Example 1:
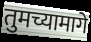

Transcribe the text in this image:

तुमच्यामागे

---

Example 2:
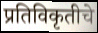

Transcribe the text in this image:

प्रतिविकृतीचे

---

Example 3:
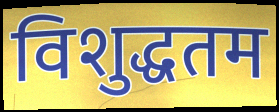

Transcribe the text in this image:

विशुद्धतम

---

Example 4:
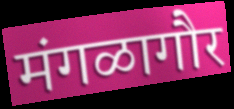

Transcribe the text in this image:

मंगळागौर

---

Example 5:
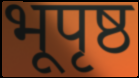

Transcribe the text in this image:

भूपृष्ठ